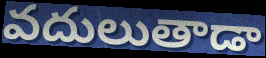
వదులుతాడా